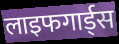
लाइफगार्ड्स